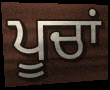
ਪੂਚਾਂ